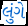
લુંગે